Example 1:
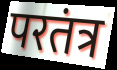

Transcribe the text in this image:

परतंत्र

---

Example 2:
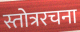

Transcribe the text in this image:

स्तोत्ररचना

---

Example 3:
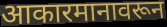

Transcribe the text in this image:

आकारमानावरून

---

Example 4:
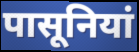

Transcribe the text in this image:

पासूनियां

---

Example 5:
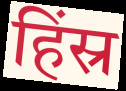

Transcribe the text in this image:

हिंस्र